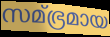
സമ്ഭ്രമായ